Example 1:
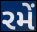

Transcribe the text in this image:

રમેં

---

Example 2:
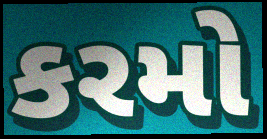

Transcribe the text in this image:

કરમો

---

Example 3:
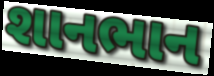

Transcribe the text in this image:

શાનભાન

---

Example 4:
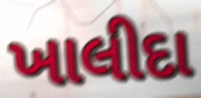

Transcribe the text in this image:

ખાલીદા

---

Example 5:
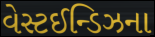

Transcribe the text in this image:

વેસ્ટઈન્ડિઝના